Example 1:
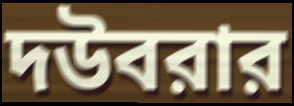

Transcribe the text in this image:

দউবরার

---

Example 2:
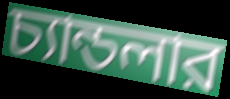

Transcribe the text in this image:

চ্যান্ডলার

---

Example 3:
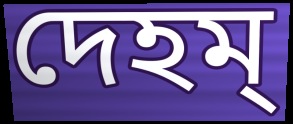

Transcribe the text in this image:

দেহম্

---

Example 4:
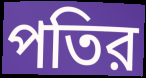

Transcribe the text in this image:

পতির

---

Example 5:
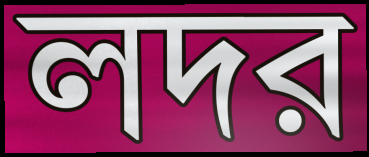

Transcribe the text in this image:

লদর